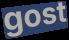
gost